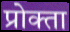
प्रोक्ता